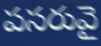
పసరువై